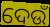
ଦେଉଁ